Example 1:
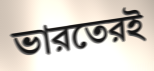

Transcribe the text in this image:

ভারতেরই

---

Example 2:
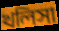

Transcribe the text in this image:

খলিসা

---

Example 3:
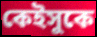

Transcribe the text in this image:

কেইসুকে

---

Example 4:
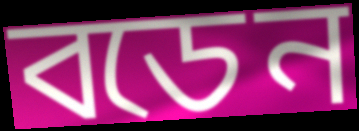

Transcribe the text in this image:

বডেন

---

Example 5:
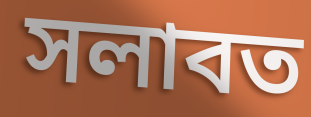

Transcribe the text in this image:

সলাবত